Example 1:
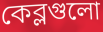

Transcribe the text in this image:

কেব্লগুলো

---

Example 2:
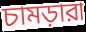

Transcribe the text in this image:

চামড়ারা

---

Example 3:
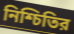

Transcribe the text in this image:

নিশ্চিতির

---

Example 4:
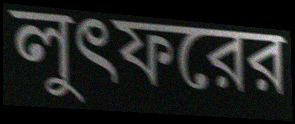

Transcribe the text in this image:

লুৎফরের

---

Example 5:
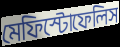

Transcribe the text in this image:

মেফিস্টোফেলিস